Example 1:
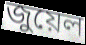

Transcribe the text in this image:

জুয়েল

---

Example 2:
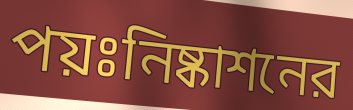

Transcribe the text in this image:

পয়ঃনিষ্কাশনের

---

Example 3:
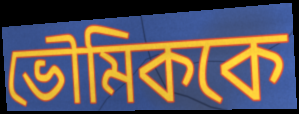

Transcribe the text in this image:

ভৌমিককে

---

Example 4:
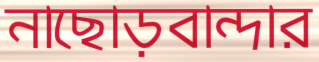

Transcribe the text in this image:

নাছোড়বান্দার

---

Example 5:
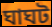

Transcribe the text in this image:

ঘাঘট